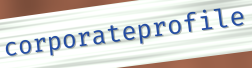
corporateprofile